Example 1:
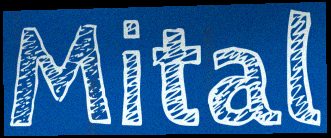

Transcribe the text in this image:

Mital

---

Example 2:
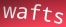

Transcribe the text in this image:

wafts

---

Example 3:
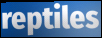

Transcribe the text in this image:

reptiles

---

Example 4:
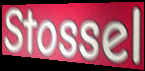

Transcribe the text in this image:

Stossel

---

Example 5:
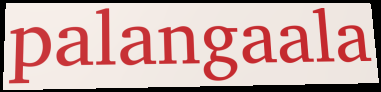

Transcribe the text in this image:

palangaala